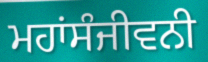
ਮਹਾਂਸੰਜੀਵਨੀ